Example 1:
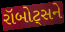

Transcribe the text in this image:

રૉબોટ્સને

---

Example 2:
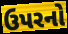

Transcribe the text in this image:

ઉપરનો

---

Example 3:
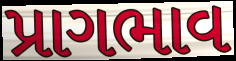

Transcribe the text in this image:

પ્રાગભાવ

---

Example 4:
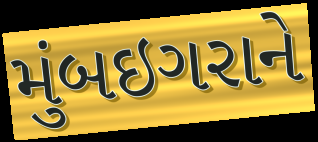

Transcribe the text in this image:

મુંબઇગરાને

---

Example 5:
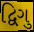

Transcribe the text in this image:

દ્વિગુ